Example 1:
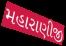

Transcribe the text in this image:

મહારાણીજી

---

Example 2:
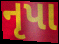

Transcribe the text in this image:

નૃપા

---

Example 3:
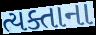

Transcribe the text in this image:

ત્યક્તાના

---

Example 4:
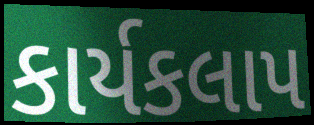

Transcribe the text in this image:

કાર્યકલાપ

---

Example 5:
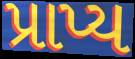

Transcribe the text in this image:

પ્રાપ્ય